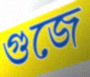
গুজে